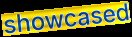
showcased